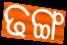
ଢଙ୍ଗ